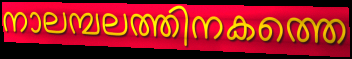
നാലമ്പലത്തിനകത്തെ